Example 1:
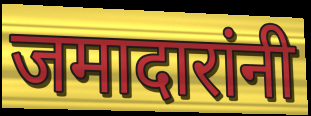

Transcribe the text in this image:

जमादारांनी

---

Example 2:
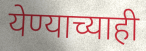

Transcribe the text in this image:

येण्याच्याही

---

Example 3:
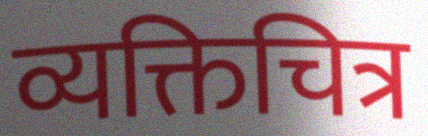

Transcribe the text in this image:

व्यक्तिचित्र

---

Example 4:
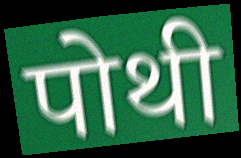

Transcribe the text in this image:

पोथी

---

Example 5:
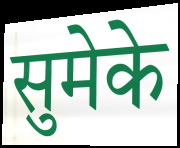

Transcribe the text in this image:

सुमेके